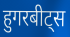
हुगरबीट्स